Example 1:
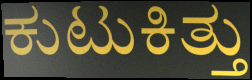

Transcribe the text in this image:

ಕುಟುಕಿತ್ತು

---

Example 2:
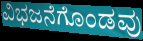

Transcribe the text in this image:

ವಿಭಜನೆಗೊಂಡವು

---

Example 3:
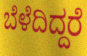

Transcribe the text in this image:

ಬೆಳೆದಿದ್ದರೆ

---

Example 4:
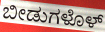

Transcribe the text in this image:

ಬೀಡುಗಳೊಳ್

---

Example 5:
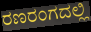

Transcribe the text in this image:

ರಣರಂಗದಲ್ಲಿ